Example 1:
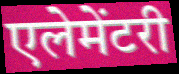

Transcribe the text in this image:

एलेमेंटरी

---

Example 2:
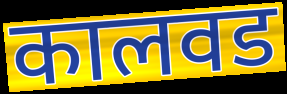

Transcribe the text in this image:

कालवड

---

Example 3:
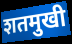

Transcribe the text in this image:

शतमुखी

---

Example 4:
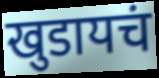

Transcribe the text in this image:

खुडायचं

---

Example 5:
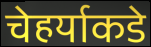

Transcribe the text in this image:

चेहर्याकडे